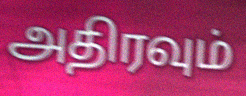
அதிரவும்